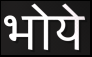
भोये